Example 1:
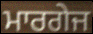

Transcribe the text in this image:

ਮਾਰਗੇਜ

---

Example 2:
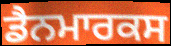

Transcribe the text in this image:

ਡੈਨਮਾਰਕਸ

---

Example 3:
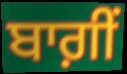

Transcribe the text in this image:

ਬਾਗ਼ੀਂ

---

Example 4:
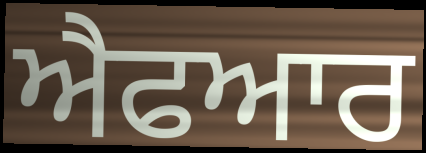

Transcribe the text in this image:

ਐਫਆਰ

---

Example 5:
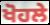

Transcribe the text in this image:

ਖੋਹਲੇ